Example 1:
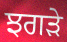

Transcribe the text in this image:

ਝਗਡ਼ੇ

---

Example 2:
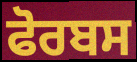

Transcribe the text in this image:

ਫੋਰਬਸ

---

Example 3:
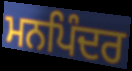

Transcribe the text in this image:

ਮਨਪਿੰਦਰ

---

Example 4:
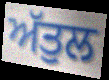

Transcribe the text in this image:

ਅੱਤੁਲ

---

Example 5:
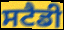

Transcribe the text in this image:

ਸਟੈਡੀ